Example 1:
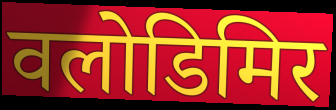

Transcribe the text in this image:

वलोडिमिर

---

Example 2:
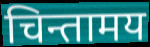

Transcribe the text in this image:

चिन्तामय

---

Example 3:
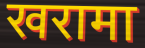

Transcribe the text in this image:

खरामा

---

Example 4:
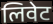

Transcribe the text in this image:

लिवेट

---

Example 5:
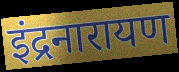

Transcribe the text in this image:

इंद्रनारायण